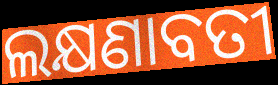
ଲକ୍ଷଣାବତୀ